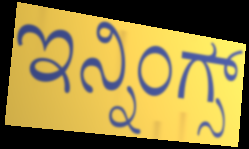
ಇನ್ನಿಂಗ್ಸ್